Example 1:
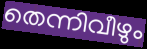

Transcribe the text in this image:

തെന്നിവീഴും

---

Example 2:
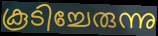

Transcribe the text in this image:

കൂടിച്ചേരുന്നു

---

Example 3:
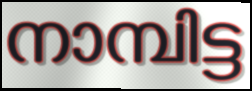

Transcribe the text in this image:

നാമ്പിട്ട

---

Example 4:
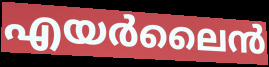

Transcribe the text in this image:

എയർലൈൻ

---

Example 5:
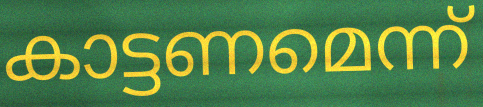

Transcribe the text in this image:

കാട്ടണമെന്ന്